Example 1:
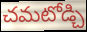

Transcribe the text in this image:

చమటోడ్చి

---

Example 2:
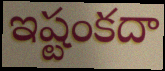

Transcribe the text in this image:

ఇష్టంకదా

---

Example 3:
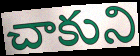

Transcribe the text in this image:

చాకుని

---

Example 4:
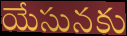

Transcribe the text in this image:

యేసునకు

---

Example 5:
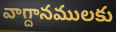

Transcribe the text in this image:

వాగ్దానములకు